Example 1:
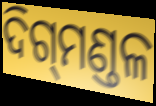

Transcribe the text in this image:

ଦିଗ୍‍ମଣ୍ଡଳ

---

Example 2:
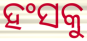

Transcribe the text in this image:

ହଂସକୁ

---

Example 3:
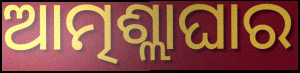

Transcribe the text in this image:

ଆତ୍ମଶ୍ଲାଘାର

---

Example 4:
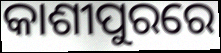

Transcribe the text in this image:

କାଶୀପୁରରେ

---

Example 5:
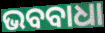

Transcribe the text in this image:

ଭବବାଧା